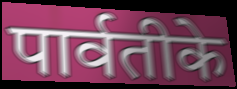
पार्वतीके